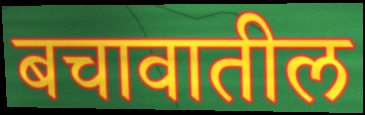
बचावातील